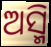
ଅସ୍ମି